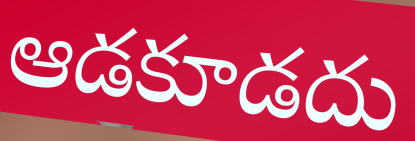
ఆడకూడదు